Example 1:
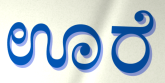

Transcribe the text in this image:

ಊರೆ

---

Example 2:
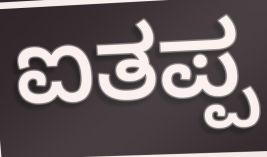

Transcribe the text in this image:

ಐತಪ್ಪ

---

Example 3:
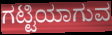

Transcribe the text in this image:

ಗಟ್ಟಿಯಾಗುವ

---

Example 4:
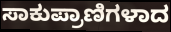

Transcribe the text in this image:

ಸಾಕುಪ್ರಾಣಿಗಳಾದ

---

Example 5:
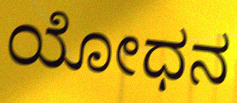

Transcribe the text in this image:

ಯೋಧನ